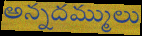
అన్నదమ్ములు